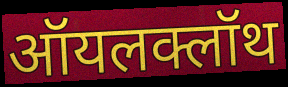
ऑयलक्लॉथ